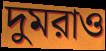
দুমরাও